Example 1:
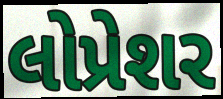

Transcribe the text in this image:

લોપ્રેશર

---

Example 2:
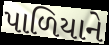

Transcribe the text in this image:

પાળિયાને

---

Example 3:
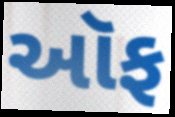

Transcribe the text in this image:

ઑફ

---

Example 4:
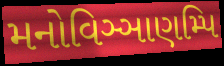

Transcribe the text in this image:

મનોવિઞ્ઞાણમ્પિ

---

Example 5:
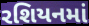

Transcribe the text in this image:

રશિયનમાં